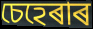
চেহেৰাৰ